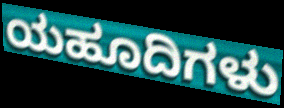
ಯಹೂದಿಗಳು